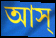
আস্